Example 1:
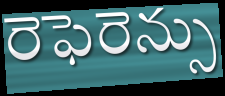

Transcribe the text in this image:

రెఫెరెన్సు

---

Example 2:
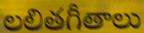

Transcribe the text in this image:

లలితగీతాలు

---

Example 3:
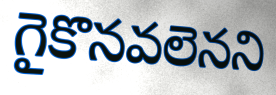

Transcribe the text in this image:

గైకొనవలెనని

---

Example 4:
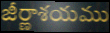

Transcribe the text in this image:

జీర్ణాశయము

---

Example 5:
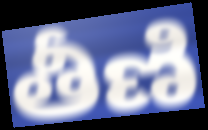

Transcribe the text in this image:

తీణి